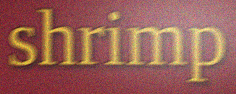
shrimp